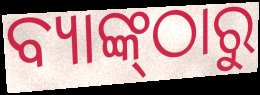
ବ୍ୟାଙ୍କ୍‌ଠାରୁ